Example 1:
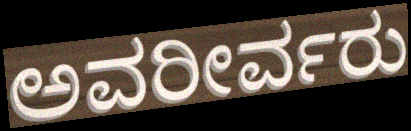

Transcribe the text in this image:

ಅವರೀರ್ವರು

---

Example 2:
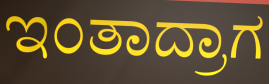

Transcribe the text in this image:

ಇಂತಾದ್ರಾಗ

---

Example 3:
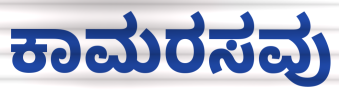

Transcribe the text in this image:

ಕಾಮರಸವು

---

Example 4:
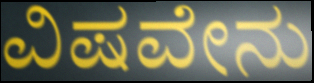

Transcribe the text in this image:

ವಿಷವೇನು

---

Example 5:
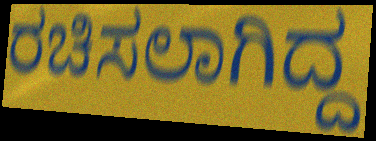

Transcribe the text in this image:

ರಚಿಸಲಾಗಿದ್ದ